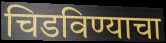
चिडविण्याचा